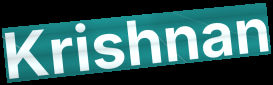
Krishnan